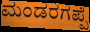
ಮಂಡರಗಪ್ಪೆ